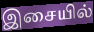
இசையில்